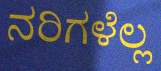
ನರಿಗಳೆಲ್ಲ